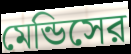
মেন্ডিসের